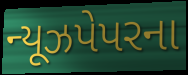
ન્યૂઝપેપરના